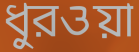
ধুরওয়া